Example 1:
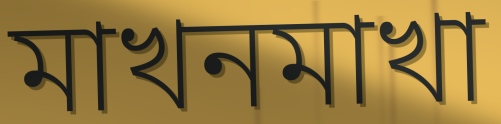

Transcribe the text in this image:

মাখনমাখা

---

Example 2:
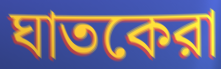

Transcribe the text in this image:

ঘাতকেরা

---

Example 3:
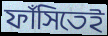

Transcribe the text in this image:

ফাঁসিতেই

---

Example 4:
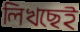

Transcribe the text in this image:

লিখছেই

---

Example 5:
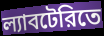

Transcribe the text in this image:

ল্যাবটেরিতে